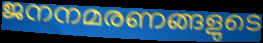
ജനനമരണങ്ങളുടെ